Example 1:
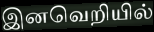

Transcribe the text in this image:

இனவெறியில்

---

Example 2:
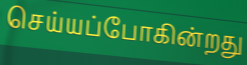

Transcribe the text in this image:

செய்யப்போகின்றது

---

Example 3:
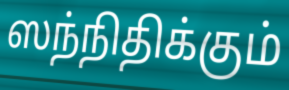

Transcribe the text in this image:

ஸந்நிதிக்கும்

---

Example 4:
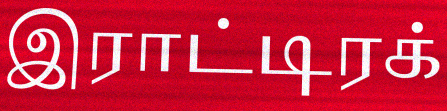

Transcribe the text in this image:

இராட்டிரக்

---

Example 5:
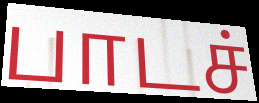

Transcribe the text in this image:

பாடச்